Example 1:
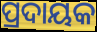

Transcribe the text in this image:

ପ୍ରଦାୟକ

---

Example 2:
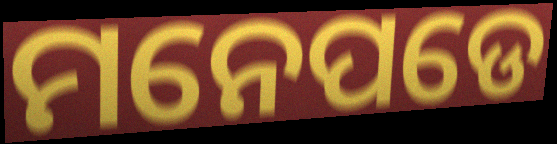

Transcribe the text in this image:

ମନେପଡେ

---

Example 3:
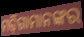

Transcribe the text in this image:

ମଡ଼ିଗାମାନଙ୍କର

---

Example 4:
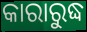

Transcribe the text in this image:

କାରାରୁଦ୍ଧ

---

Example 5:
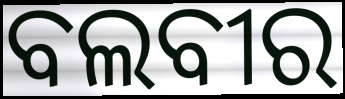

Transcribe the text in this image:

ବଲବୀର